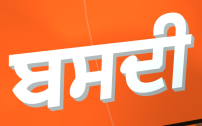
ਬਸਦੀ